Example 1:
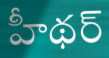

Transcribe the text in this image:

హీథర్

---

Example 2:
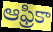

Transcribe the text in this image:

ఆఫ్రికా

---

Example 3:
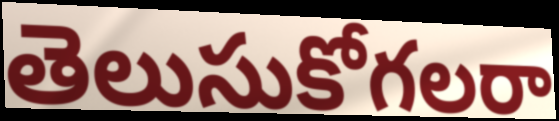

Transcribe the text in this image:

తెలుసుకోగలరా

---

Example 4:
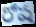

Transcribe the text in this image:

రోష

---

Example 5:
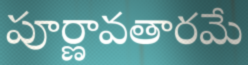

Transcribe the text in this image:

పూర్ణావతారమే